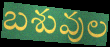
బశువుల